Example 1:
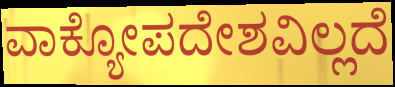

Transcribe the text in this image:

ವಾಕ್ಯೋಪದೇಶವಿಲ್ಲದೆ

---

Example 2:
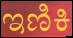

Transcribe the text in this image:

ಇಣಿಕಿ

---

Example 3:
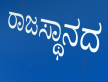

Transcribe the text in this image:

ರಾಜಸ್ಥಾನದ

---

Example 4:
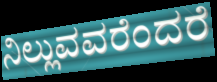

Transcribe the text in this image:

ನಿಲ್ಲುವವರೆಂದರೆ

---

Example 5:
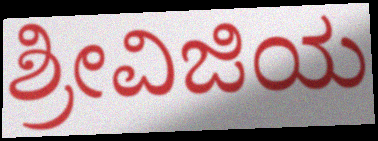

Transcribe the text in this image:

ಶ್ರೀವಿಜಿಯ